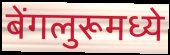
बेंगलुरूमध्ये